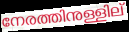
നേരത്തിനുള്ളില്